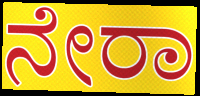
ನೇರಾ